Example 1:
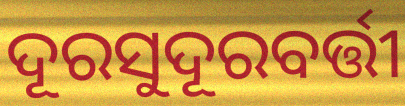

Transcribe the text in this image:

ଦୂରସୁଦୂରବର୍ତ୍ତୀ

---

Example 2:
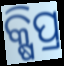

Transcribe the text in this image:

କ୍ଷିପ୍ର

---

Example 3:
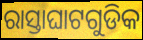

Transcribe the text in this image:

ରାସ୍ତାଘାଟଗୁଡିକ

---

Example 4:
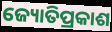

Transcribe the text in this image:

ଜ୍ୟୋତିପ୍ରକାଶ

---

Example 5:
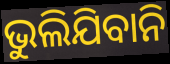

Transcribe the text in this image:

ଭୁଲିଯିବାନି